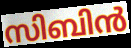
സിബിൻ